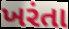
ખરંતા